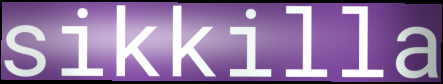
sikkilla